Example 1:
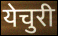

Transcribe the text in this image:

येचुरी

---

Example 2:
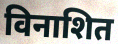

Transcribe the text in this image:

विनाशित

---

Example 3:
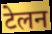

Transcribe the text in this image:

टेलन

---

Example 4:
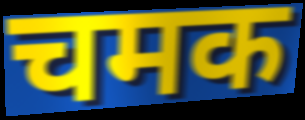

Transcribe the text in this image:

चमक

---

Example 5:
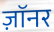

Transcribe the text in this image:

ज़ॉनर